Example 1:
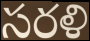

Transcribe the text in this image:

సరళి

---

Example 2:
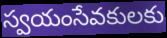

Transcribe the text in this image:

స్వయంసేవకులకు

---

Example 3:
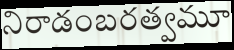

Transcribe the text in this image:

నిరాడంబరత్వమూ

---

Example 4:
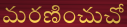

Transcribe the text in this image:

మరణించుచో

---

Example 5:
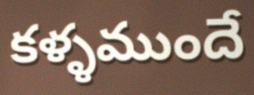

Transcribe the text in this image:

కళ్ళముందే